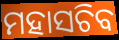
ମହାସଚିବ